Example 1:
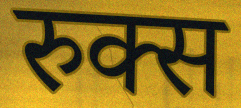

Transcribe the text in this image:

रुक्स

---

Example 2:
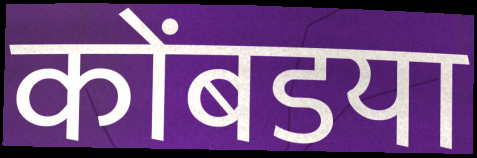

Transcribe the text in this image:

कोंबडया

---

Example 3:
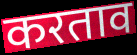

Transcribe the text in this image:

करताव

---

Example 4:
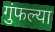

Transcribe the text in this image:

गुंफल्या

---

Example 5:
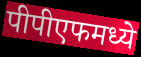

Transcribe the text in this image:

पीपीएफमध्ये